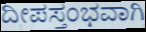
ದೀಪಸ್ತಂಭವಾಗಿ